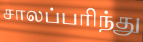
சாலப்பரிந்து